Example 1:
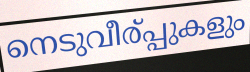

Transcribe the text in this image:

നെടുവീര്പ്പുകളും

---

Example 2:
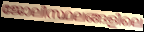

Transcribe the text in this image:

ജോലിസ്ഥലങ്ങളിലെ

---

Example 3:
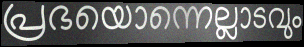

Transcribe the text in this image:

പ്രഭയൊന്നെല്ലാടവും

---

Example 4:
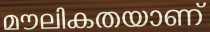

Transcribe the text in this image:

മൗലികതയാണ്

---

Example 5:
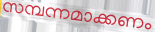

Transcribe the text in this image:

സമ്പന്നമാക്കണം